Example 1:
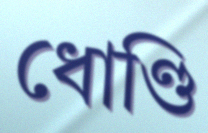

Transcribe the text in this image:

ধোণ্ডি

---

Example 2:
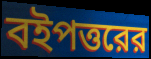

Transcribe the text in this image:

বইপত্তরের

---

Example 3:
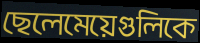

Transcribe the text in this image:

ছেলেমেয়েগুলিকে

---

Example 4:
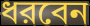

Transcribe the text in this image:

ধরবেন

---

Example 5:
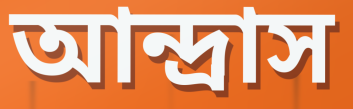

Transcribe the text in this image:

আন্দ্রাস